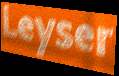
Leyser